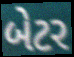
બેટર